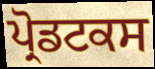
ਪ੍ਰੋਡਟਕਸ